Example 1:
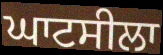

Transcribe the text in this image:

ਘਾਟਸੀਲਾ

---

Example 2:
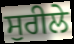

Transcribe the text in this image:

ਸੁਰੀਲੇ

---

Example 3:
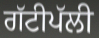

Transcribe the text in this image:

ਗੱਟੀਪੱਲੀ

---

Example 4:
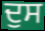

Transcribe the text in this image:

ਦੁਸ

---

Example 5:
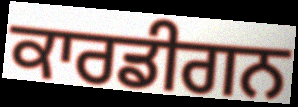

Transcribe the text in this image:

ਕਾਰਡੀਗਨ